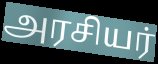
அரசியர்